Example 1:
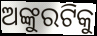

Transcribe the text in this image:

ଅଙ୍କୁରଟିକୁ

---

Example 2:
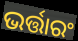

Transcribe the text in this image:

ଭର୍ତ୍ତାରଂ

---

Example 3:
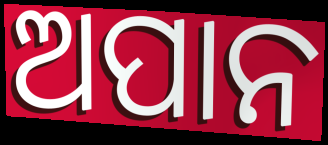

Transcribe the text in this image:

ଅପାନ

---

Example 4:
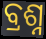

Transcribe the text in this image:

ବ୍ରଶ୍ନ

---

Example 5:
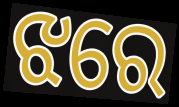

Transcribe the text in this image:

ଝରେ